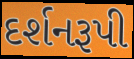
દર્શનરૂપી